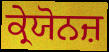
ਕ੍ਰੇਯੋਨਜ਼